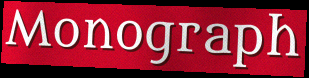
Monograph